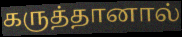
கருத்தானால்